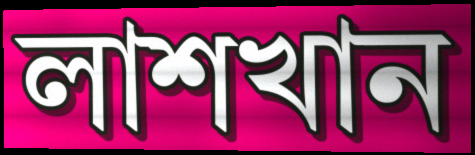
লাশখান